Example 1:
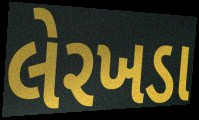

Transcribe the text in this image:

લેરખડા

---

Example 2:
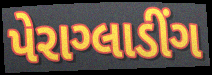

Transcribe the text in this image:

પેરાગ્લાડીંગ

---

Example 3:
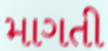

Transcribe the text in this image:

માગતી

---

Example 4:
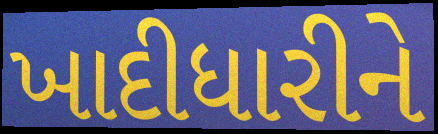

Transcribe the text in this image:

ખાદીધારીને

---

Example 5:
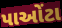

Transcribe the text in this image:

પાઓંટા